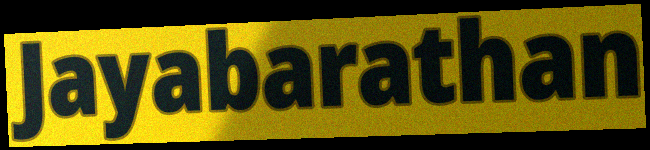
Jayabarathan